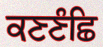
ਕਣਣੰਛਿ